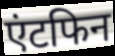
एंटफिन